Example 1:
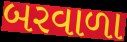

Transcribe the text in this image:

બરવાળા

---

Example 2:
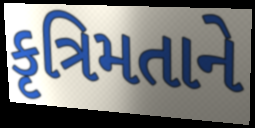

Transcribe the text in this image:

કૃત્રિમતાને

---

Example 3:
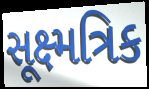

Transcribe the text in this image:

સૂક્ષ્મત્રિક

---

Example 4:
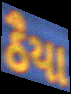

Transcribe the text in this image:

ઠૈયા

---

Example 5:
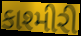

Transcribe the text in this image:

કાશ્મીરી